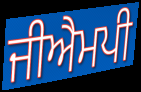
ਜੀਐਮਪੀ